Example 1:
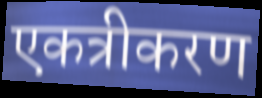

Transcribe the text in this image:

एकत्रीकरण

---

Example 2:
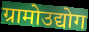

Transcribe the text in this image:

ग्रामोउद्योग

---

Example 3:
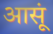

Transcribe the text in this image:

आसूं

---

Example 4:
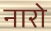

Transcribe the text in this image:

नारो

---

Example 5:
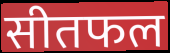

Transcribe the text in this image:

सीतफल